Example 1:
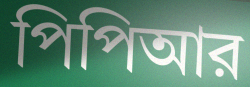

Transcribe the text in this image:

পিপিআর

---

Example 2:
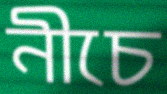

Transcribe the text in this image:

নীচে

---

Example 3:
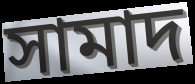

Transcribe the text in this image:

সামাদ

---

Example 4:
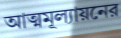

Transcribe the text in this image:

আত্মমূল্যায়নের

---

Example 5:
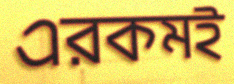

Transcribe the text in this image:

এরকমই